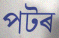
পটৰ